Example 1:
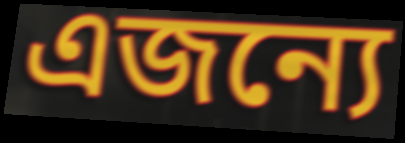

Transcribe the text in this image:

এজন্যে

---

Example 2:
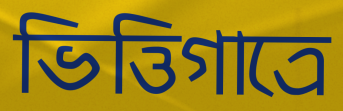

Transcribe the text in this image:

ভিত্তিগাত্রে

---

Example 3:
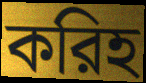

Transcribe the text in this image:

করিহ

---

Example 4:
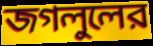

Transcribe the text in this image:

জগলুলের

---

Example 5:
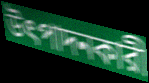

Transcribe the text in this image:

উৎপাদনকারী